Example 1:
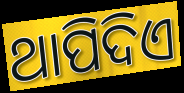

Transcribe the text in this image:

ଥାପିଦିଏ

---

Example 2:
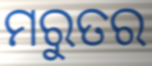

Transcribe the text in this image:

ମରୁତର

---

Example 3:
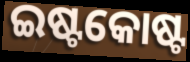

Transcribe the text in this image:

ଇଷ୍ଟକୋଷ୍ଟ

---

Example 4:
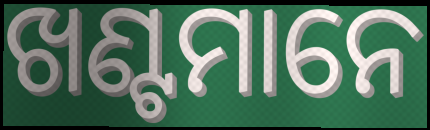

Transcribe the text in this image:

ଖଣ୍ଟମାନେ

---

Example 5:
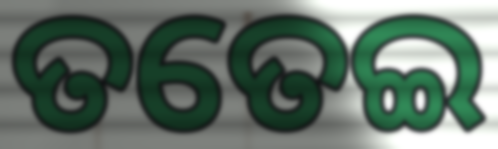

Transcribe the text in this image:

ତତେଇ